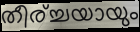
തീര്ച്ചയായും